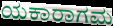
ಯಕಾರಾಗಮ